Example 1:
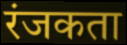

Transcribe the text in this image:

रंजकता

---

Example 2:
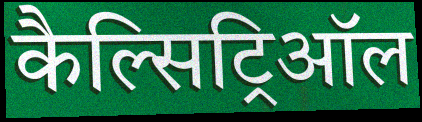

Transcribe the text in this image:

कैल्सिट्रिऑल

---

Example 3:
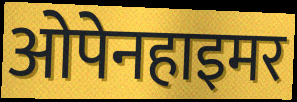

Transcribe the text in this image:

ओपेनहाइमर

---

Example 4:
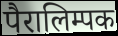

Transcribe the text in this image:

पैरालिम्पक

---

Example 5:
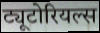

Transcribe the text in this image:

ट्यूटोरियल्स